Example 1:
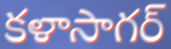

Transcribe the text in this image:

కళాసాగర్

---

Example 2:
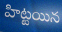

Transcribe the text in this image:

హిట్టయిన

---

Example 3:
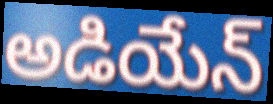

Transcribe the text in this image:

అడియేన్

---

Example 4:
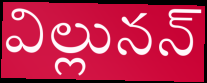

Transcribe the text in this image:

విల్లునన్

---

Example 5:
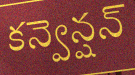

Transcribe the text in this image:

కన్వెన్షన్